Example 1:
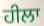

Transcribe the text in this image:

ਹੀਲਾ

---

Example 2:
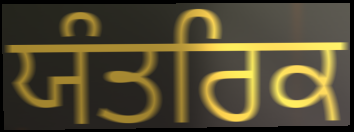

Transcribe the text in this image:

ਯੰਤਰਿਕ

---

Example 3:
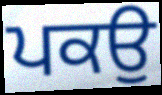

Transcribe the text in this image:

ਪਕਉ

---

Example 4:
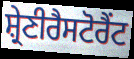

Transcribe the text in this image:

ਸ਼੍ਰੇਣੀਰੈਸਟੋਰੈਂਟ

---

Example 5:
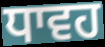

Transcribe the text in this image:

ਧਾਵਹ